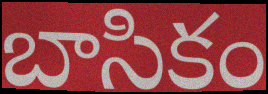
బాసికం